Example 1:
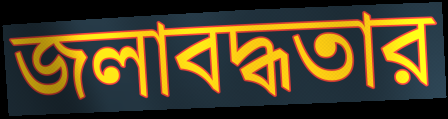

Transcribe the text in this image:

জলাবদ্ধতার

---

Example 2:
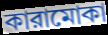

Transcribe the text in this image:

কারামোকা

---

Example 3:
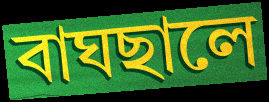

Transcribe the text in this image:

বাঘছালে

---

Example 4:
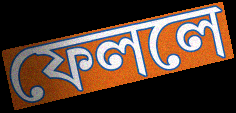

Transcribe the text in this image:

ফেললে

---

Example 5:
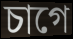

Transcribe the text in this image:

চাগে